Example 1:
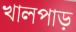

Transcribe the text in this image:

খালপাড়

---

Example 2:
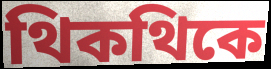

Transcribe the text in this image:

থিকথিকে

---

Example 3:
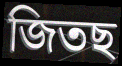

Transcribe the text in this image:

জিতছ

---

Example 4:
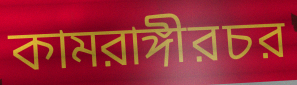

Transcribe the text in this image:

কামরাঙ্গীরচর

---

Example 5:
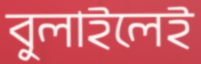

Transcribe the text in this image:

বুলাইলেই